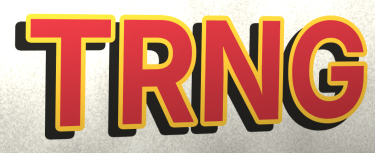
TRNG